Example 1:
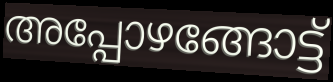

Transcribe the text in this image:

അപ്പോഴങ്ങോട്ട്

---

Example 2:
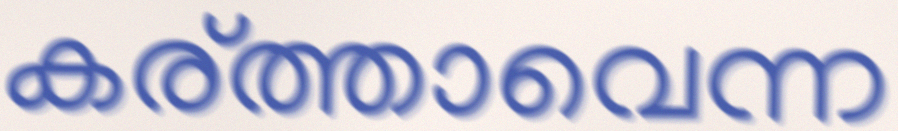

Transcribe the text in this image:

കര്ത്താവെന്ന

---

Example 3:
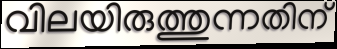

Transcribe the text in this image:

വിലയിരുത്തുന്നതിന്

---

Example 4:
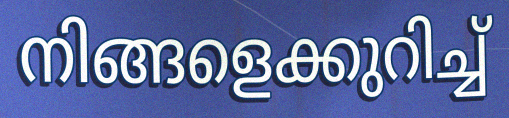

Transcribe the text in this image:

നിങ്ങളെക്കുറിച്ച്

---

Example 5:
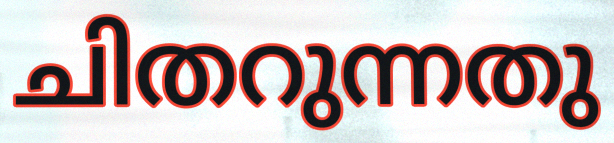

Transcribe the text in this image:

ചിതറുന്നതു